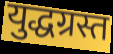
युद्धग्रस्त